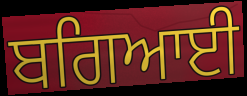
ਬਗਿਆਈ